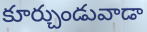
కూర్చుండువాడా